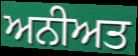
ਅਨੀਅਤ